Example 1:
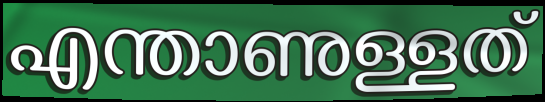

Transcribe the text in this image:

എന്താണുള്ളത്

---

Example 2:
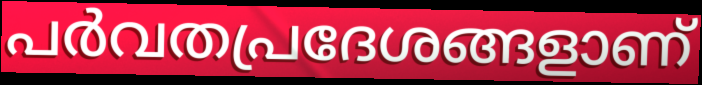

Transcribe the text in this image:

പർവതപ്രദേശങ്ങളാണ്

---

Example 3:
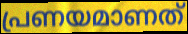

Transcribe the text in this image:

പ്രണയമാണത്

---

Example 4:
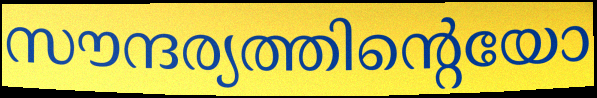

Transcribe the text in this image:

സൗന്ദര്യത്തിന്റെയോ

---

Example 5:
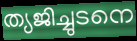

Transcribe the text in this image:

ത്യജിച്ചുടനെ